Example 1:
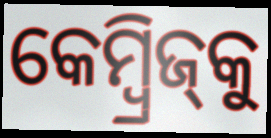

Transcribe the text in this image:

କେମ୍ୱ୍ରିଜ୍‌କୁ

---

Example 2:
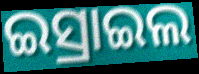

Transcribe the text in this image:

ଇସ୍ରାଇଲ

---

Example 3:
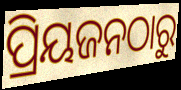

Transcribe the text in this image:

ପ୍ରିୟଜନଠାରୁ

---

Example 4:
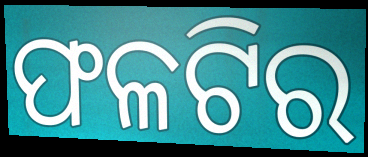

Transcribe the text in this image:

ଫଳଟିର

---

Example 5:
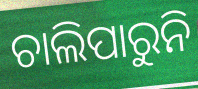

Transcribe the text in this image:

ଚାଲିପାରୁନି